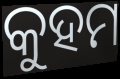
କୁହମ